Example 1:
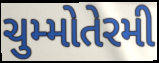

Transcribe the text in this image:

ચુમ્મોતેરમી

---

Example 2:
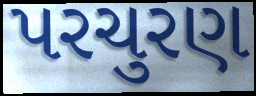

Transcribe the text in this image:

પરચુરણ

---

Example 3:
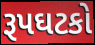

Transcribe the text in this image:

રૂપઘટકો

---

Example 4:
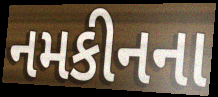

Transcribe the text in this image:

નમકીનના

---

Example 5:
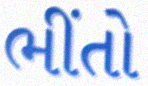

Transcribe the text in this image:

ભીંતો